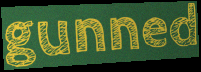
gunned